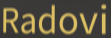
Radovi